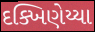
દક્ખિણેય્યા